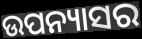
ଉପନ୍ୟାସର